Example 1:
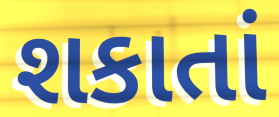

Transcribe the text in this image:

શકાતાં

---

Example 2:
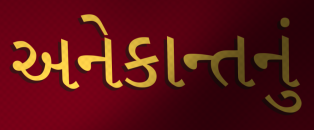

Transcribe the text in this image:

અનેકાન્તનું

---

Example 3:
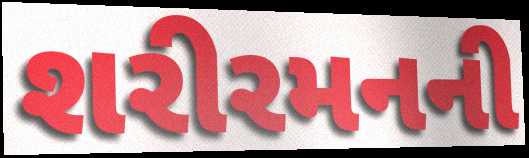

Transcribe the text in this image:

શરીરમનની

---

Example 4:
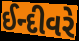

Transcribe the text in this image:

ઈન્દીવરે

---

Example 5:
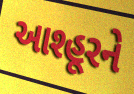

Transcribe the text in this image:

આશ્હૂરને